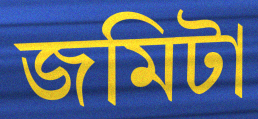
জমিটা